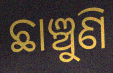
ଛାଞ୍ଚୁଣି